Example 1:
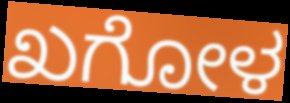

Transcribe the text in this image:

ಖಗೋಳ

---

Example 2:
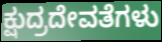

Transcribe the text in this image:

ಕ್ಷುದ್ರದೇವತೆಗಳು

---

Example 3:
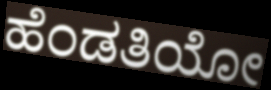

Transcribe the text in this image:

ಹೆಂಡತಿಯೋ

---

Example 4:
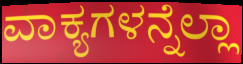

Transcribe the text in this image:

ವಾಕ್ಯಗಳನ್ನೆಲ್ಲಾ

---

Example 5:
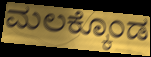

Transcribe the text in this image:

ಮಲಕ್ಕೊಂಡ